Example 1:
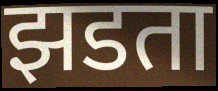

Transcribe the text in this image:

झडता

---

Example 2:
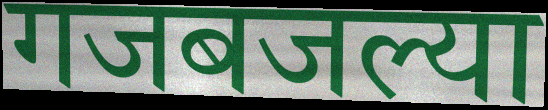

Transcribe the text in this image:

गजबजल्या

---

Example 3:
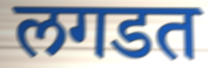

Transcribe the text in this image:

लगडत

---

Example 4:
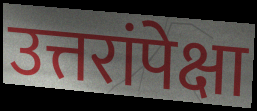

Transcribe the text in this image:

उत्तरांपेक्षा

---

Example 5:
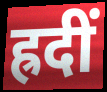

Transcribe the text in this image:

ह्रदीं